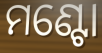
ମଣ୍ଟୋ